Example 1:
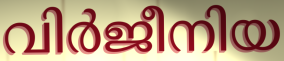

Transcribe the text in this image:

വിർജീനിയ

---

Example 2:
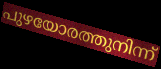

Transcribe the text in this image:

പുഴയോരത്തുനിന്ന്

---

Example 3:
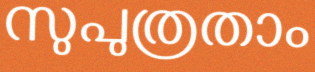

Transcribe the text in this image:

സുപുത്രതാം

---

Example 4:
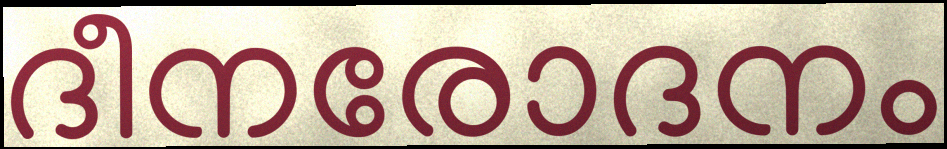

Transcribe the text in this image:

ദീനരോദനം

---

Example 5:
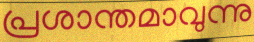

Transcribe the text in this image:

പ്രശാന്തമാവുന്നു